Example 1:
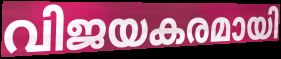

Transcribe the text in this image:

വിജയകരമായി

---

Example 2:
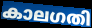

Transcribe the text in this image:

കാലഗതി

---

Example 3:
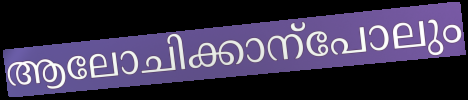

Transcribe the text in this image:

ആലോചിക്കാന്പോലും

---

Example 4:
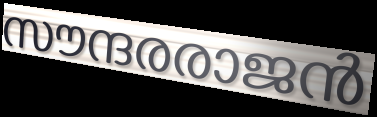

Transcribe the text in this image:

സൗന്ദരരാജൻ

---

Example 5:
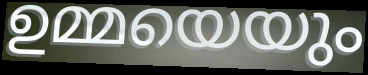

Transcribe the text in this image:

ഉമ്മയെയും